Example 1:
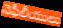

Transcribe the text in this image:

నెఫీలీయులు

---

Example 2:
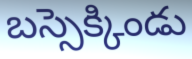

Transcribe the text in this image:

బస్సెక్కిండు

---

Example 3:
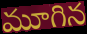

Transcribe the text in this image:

మూగిన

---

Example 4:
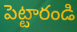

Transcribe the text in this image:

పెట్టారండి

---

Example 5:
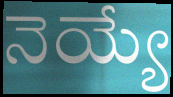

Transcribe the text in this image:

నెయ్యే